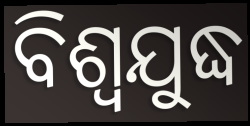
ବିଶ୍ୱଯୁଦ୍ଧ